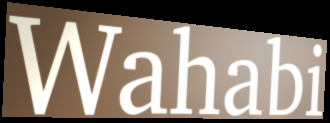
Wahabi